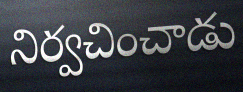
నిర్వచించాడు